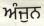
ਅੰਜੁਨ